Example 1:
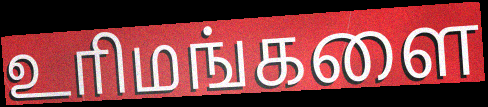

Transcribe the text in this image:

உரிமங்களை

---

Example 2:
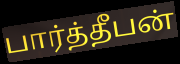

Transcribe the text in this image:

பார்த்தீபன்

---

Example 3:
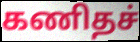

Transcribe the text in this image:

கணிதச்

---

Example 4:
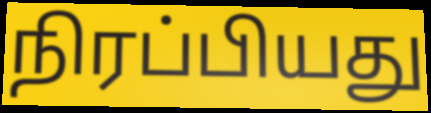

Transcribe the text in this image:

நிரப்பியது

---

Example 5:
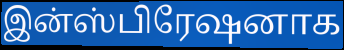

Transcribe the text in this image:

இன்ஸ்பிரேஷனாக